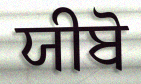
ਯੀਬੋ